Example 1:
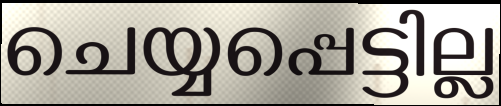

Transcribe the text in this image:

ചെയ്യപ്പെട്ടില്ല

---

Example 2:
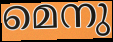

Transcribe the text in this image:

മെനു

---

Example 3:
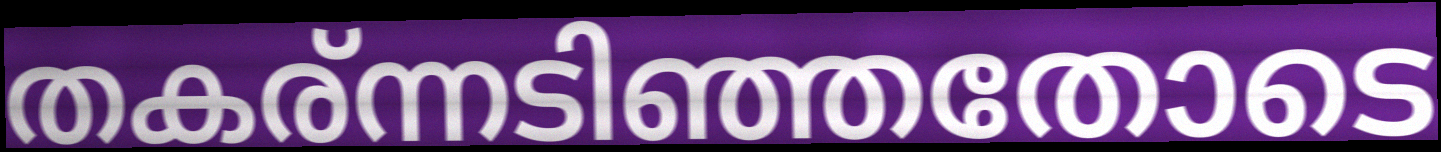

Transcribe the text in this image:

തകര്ന്നടിഞ്ഞതോടെ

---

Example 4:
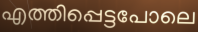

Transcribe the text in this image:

എത്തിപ്പെട്ടപോലെ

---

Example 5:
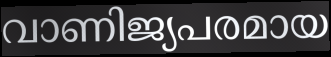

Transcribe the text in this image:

വാണിജ്യപരമായ